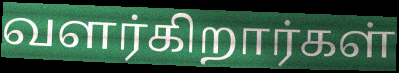
வளர்கிறார்கள்